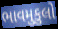
ભાવમુકુલો